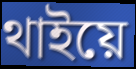
থাইয়ে